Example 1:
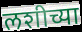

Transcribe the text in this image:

लशीच्या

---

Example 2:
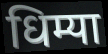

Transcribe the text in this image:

धिम्या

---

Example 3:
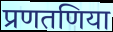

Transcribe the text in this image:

प्रणतणिया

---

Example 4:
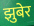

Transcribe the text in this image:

झुबेर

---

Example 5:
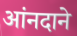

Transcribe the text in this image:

आंनदाने